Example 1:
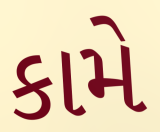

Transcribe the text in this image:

કામે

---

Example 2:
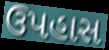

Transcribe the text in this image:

ઉપહાસ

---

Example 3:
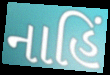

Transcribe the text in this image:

નાહિં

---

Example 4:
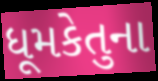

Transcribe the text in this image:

ધૂમકેતુના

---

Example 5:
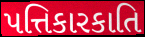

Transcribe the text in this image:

પત્તિકારકાતિ